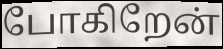
போகிறேன்